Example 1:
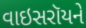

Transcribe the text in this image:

વાઇસરૉયને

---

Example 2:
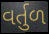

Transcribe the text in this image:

વર્તુળ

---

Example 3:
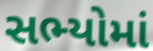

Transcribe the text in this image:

સભ્યોમાં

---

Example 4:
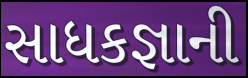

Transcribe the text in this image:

સાધકજ્ઞાની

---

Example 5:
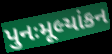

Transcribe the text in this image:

પુનઃમૂલ્યાંકન